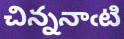
చిన్ననాఁటి